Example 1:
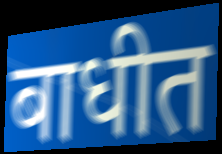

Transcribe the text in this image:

बाधीत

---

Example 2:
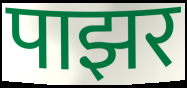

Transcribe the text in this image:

पाझर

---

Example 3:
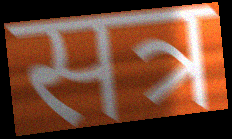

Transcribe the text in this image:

सत्र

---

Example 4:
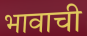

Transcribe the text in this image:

भावाची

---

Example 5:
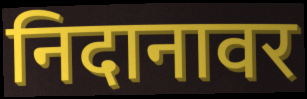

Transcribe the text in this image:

निदानावर